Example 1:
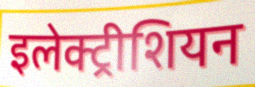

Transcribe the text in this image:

इलेक्ट्रीशियन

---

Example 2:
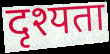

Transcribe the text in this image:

दृश्यता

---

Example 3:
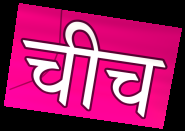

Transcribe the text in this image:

चीच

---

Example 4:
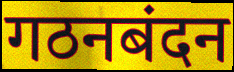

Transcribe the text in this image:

गठनबंदन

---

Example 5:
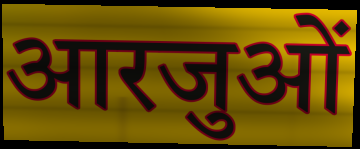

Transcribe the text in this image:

आरजुओं